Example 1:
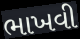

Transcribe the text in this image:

ભાખવી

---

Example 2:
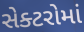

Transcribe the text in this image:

સેક્ટરોમાં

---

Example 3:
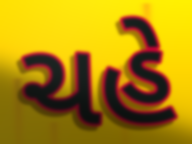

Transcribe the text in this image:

ચહે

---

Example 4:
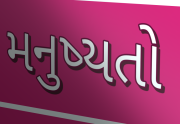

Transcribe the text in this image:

મનુષ્યતો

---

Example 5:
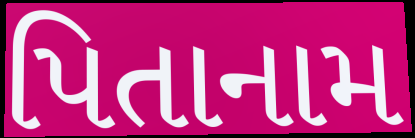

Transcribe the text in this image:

પિતાનામ